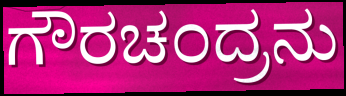
ಗೌರಚಂದ್ರನು